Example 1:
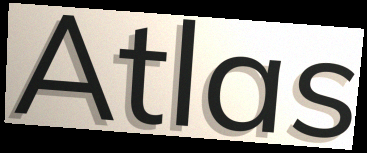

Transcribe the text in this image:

Atlas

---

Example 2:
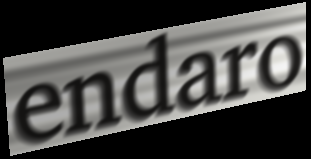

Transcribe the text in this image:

endaro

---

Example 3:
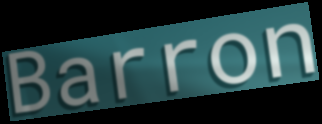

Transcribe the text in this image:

Barron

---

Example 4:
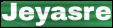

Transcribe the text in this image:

Jeyasre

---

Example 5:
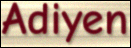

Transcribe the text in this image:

Adiyen